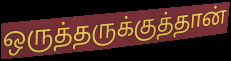
ஒருத்தருக்குத்தான்